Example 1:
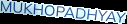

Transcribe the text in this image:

MUKHOPADHYAY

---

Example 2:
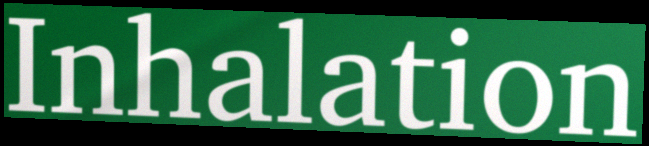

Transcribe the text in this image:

Inhalation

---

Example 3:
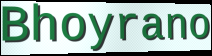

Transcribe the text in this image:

Bhoyrano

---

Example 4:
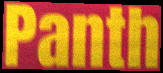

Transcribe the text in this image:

Panth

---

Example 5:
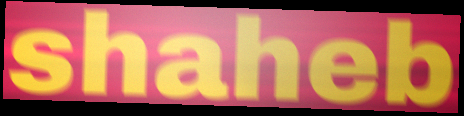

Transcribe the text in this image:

shaheb